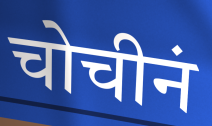
चोचीनं